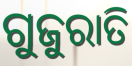
ଗୁଜୁରାତି